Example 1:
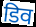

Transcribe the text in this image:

डिव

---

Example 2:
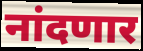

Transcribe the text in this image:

नांदणार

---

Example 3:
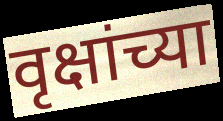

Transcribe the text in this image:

वृक्षांच्या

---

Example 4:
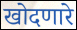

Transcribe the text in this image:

खोदणारे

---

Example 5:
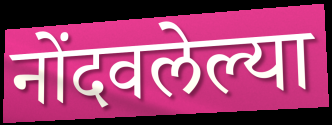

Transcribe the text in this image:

नोंदवलेल्या